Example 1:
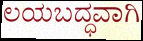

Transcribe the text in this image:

ಲಯಬದ್ಧವಾಗಿ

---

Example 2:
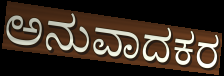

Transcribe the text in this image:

ಅನುವಾದಕರ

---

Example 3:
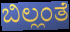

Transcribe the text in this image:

ಬಿಲ್ಲಂತೆ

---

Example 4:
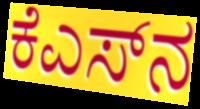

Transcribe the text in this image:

ಕೆಎಸ್‌ನ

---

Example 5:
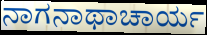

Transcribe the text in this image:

ನಾಗನಾಥಾಚಾರ್ಯ